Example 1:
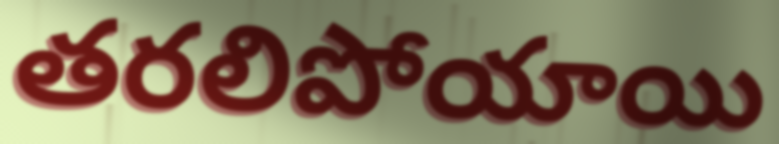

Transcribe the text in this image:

తరలిపోయాయి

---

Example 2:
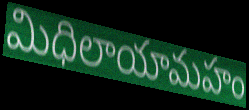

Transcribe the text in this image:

మిధిలాయామహం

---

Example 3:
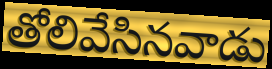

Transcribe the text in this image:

తోలివేసినవాడు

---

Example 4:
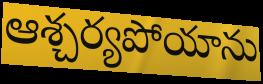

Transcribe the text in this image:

ఆశ్చర్యపోయాను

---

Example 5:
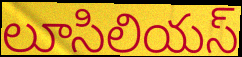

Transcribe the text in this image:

లూసిలియస్